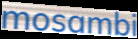
mosambi